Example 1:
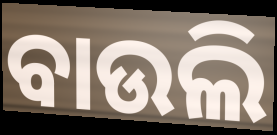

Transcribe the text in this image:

ବାଉଲି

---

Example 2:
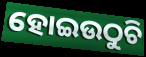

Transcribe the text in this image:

ହୋଇଉଠୁଚି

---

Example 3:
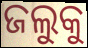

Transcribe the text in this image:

ଜଲୁକୁ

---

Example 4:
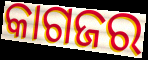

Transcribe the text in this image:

କାଗଜର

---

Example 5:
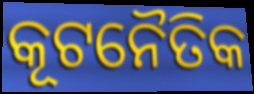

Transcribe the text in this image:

କୂଟନୈତିକ